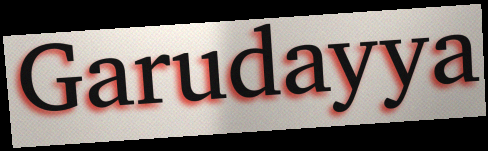
Garudayya